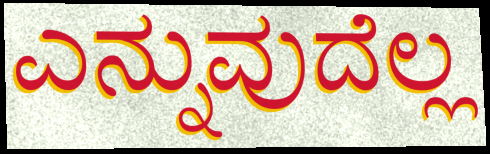
ಎನ್ನುವುದೆಲ್ಲ